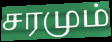
சரமும்